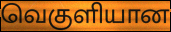
வெகுளியான